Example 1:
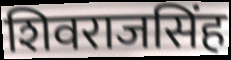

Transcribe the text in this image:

शिवराजसिंह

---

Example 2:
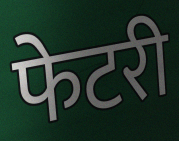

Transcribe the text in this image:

फेटरी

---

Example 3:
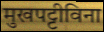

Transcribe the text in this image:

मुखपट्टीविना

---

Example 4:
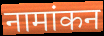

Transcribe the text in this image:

नामांकन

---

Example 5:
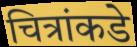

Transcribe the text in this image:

चित्रांकडे